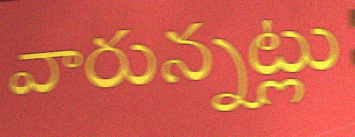
వారున్నట్లు